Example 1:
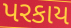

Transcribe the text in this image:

પરકાય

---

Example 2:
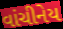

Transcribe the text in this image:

વાંચીનેય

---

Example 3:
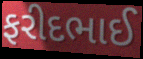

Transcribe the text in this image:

ફરીદભાઈ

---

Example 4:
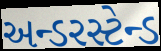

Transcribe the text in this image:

અન્ડરસ્ટેન્ડ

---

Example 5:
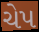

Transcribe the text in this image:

ચેપ